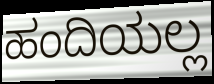
ಹಂದಿಯಲ್ಲ